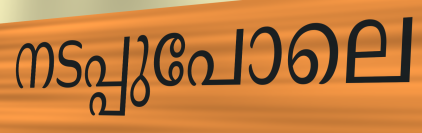
നടപ്പുപോലെ